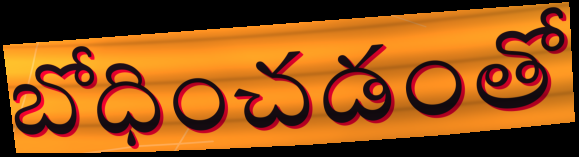
బోధించడంతో